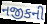
નજીકની